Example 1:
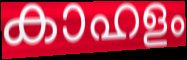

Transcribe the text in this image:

കാഹളം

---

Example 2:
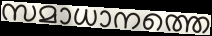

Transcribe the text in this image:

സമാധാനത്തെ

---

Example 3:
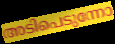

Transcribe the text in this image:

അടിപെടുന്നോ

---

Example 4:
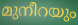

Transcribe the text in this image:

മുനീറയും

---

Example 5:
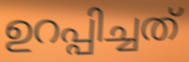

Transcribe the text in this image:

ഉറപ്പിച്ചത്